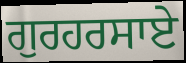
ਗੁਰਹਰਸਾਏ